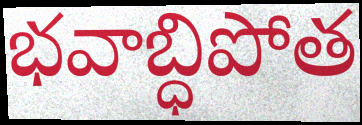
భవాబ్ధిపోత